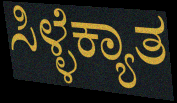
ಸಿಳ್ಳೆಕ್ಯಾತ